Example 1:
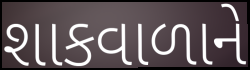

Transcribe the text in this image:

શાકવાળાને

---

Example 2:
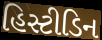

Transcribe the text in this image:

હિસ્ટીડિન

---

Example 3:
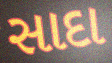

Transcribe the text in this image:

સાદા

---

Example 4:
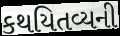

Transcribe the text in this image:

કથયિતવ્યની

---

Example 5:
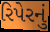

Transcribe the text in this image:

રિપેરનું